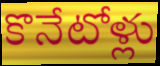
కొనేటోళ్లు